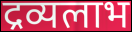
द्रव्यलाभ